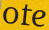
ote